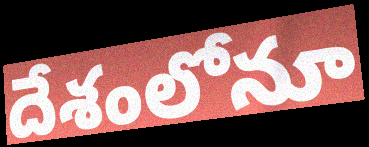
దేశంలోనూ